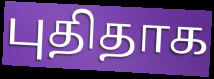
புதிதாக